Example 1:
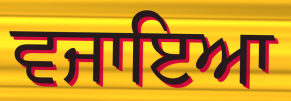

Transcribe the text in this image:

ਵਜਾਇਆ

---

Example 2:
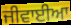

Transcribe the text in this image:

ਜੀਵਾਈਆ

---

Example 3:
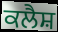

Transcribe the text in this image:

ਕਲੈਸ਼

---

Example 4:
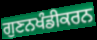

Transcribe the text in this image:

ਗੁਣਨਖੰਡੀਕਰਨ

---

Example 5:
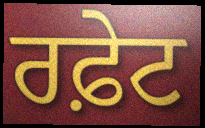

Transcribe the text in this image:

ਰਫ਼ੇਟ